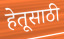
हेतूसाठी